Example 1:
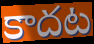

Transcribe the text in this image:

కాదట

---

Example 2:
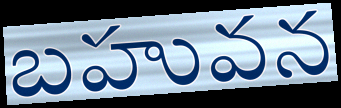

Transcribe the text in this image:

బహువన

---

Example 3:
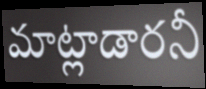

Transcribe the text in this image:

మాట్లాడారనీ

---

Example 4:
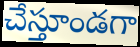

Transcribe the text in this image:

చేస్తూండగా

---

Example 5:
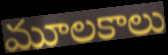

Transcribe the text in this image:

మూలకాలు